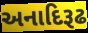
અનાદિરૂઢ